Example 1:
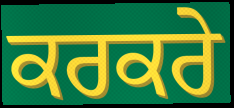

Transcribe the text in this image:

ਕਰਕਰੇ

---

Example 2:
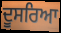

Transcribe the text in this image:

ਦੂਸਰਿਆ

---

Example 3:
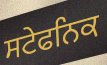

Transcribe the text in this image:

ਸਟੇਫਨਿਕ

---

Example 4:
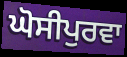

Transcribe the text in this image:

ਘੋਸੀਪੁਰਵਾ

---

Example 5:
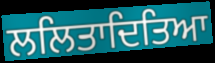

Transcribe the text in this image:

ਲਲਿਤਾਦਿਤਿਆ